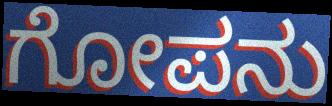
ಗೋಪನು